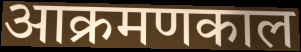
आक्रमणकाल